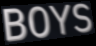
BOYS